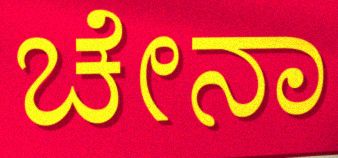
ಚೇನಾ